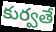
కుర్వతే